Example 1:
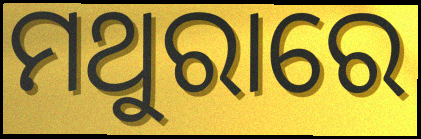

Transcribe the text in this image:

ମଥୁରାରେ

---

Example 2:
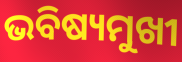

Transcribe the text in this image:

ଭବିଷ୍ୟମୁଖୀ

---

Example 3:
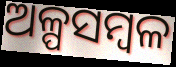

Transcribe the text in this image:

ଅଳ୍ପସମ୍ବଳ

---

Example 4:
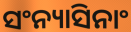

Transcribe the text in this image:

ସଂନ୍ୟାସିନାଂ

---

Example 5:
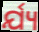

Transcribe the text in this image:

ର୍ଯ୍ୟ